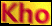
Kho